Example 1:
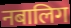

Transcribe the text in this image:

नबालिग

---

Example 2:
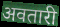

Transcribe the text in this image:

अवतारी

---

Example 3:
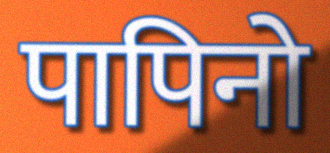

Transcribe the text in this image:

पापिनो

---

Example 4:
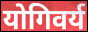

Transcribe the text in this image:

योगिवर्य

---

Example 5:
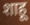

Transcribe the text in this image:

शाहू